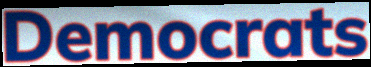
Democrats